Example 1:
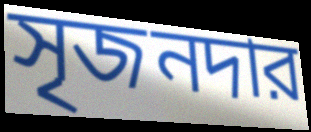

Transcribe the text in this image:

সৃজনদার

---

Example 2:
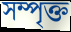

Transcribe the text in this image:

সম্পৃক্ত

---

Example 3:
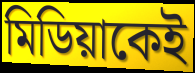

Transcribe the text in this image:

মিডিয়াকেই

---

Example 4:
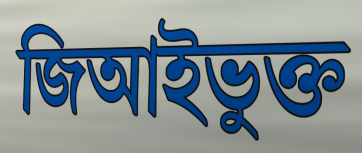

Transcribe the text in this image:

জিআইভুক্ত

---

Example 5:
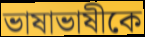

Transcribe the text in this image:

ভাষাভাষীকে